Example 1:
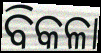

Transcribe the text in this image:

ବିକଳା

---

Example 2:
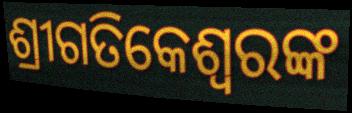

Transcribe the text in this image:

ଶ୍ରୀଗତିକେଶ୍ବରଙ୍କ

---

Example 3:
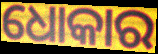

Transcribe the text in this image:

ଧୋକାର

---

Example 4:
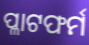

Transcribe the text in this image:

ପ୍ଳାଟଫର୍ମ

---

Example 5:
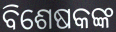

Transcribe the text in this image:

ବିଶେଷକଙ୍କ